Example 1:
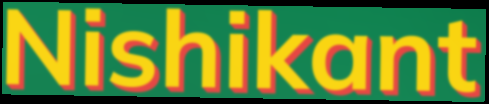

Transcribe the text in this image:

Nishikant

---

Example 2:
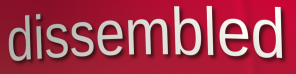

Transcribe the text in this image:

dissembled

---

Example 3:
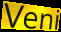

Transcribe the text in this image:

Veni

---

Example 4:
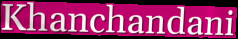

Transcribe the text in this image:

Khanchandani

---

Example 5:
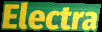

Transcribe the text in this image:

Electra